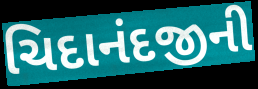
ચિદાનંદજીની